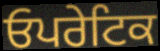
ਓਪਰੇਟਿਕ